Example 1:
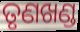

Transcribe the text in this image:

ତୃଣଖଣ୍ଡ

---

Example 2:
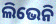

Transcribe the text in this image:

ଲିଭେନି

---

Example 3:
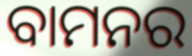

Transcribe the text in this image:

ବାମନର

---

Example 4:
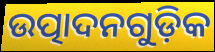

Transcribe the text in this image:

ଉତ୍ପାଦନଗୁଡ଼ିକ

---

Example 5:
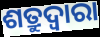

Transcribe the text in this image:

ଶତ୍ରୁଦ୍ଵାରା